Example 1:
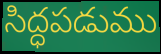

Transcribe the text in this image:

సిద్ధపడుము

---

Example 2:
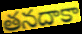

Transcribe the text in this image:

తనదాకా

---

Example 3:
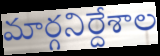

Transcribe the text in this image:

మార్గనిర్దేశాల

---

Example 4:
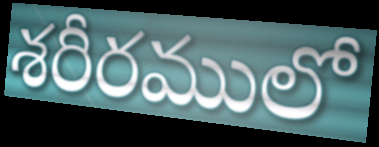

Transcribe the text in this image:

శరీరములో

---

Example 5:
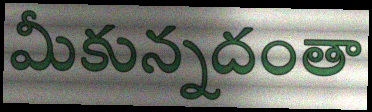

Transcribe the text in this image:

మీకున్నదంతా